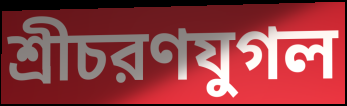
শ্রীচরণযুগল